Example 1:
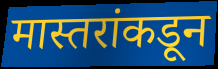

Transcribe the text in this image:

मास्तरांकडून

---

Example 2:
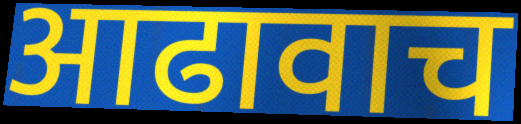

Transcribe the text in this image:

आढावाच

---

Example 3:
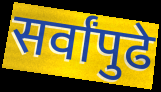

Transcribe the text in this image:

सर्वांपुढे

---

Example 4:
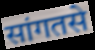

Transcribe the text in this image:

सांगतसे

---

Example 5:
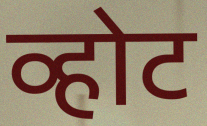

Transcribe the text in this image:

व्होट